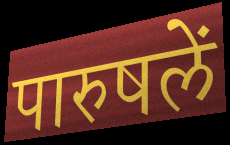
पारुषलें